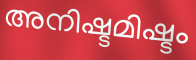
അനിഷ്ടമിഷ്ടം